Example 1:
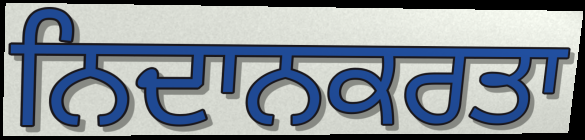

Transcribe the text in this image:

ਨਿਦਾਨਕਰਤਾ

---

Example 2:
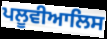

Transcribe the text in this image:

ਪਲੂਵੀਆਲਿਸ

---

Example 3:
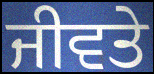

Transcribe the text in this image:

ਜੀਵਤੇ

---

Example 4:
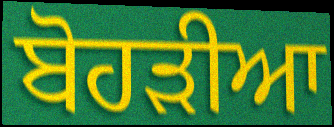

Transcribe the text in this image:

ਬੋਹੜੀਆ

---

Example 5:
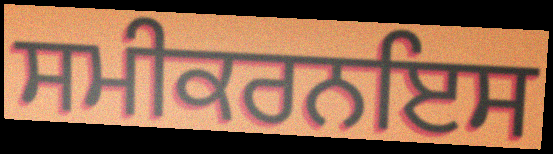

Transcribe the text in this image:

ਸਮੀਕਰਨਇਸ